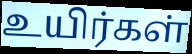
உயிர்கள்